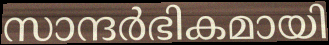
സാന്ദർഭികമായി